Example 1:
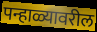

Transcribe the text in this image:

पन्हाळ्यावरील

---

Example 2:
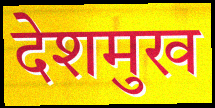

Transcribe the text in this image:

देशमुख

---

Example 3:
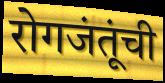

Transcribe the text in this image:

रोगजंतूंची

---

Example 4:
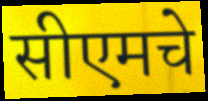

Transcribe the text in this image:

सीएमचे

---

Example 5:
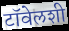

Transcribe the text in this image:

टॉवेलशी